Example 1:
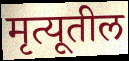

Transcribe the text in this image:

मृत्यूतील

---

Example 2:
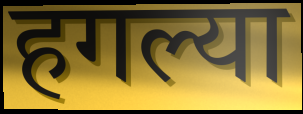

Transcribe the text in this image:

हगल्या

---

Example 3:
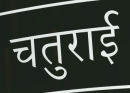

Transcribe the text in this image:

चतुराई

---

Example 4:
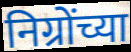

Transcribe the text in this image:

निग्रोंच्या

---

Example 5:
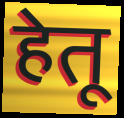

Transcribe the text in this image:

हेतू